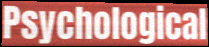
Psychological